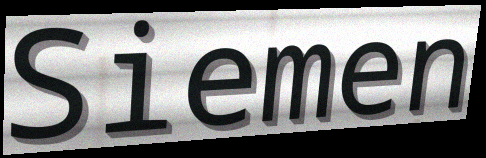
Siemen